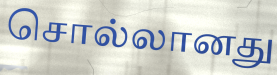
சொல்லானது